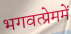
भगवत्प्रेममें